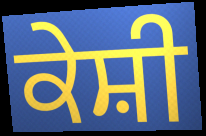
ਕੇਸ਼ੀ